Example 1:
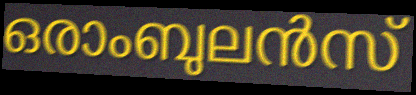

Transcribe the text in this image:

ഒരാംബുലൻസ്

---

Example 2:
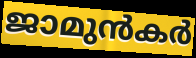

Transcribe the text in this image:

ജാമുൻകർ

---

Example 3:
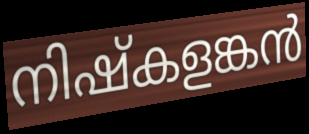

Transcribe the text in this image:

നിഷ്കളങ്കൻ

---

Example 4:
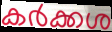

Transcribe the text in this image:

കർക്കശ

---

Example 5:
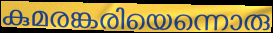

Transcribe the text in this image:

കുമരങ്കരിയെന്നൊരു